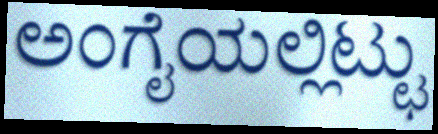
ಅಂಗೈಯಲ್ಲಿಟ್ಟು